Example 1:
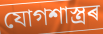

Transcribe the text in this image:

যোগশাস্ত্ৰৰ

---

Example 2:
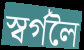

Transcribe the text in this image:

স্বৰ্গলৈ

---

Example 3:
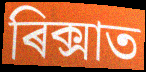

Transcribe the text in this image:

ৰিক্সাত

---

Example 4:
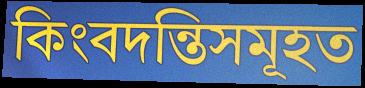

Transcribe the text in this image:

কিংবদন্তিসমূহত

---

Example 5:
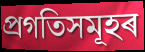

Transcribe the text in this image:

প্ৰগতিসমূহৰ